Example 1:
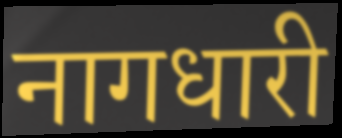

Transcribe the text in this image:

नागधारी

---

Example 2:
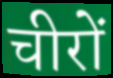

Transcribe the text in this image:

चीरों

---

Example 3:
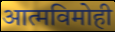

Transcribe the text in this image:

आत्मविमोही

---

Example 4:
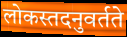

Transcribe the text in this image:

लोकस्तदनुवर्तते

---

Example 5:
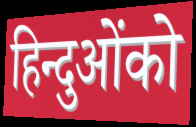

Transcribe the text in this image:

हिन्दुओंको